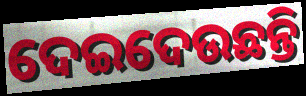
ଦେଇଦେଉଛନ୍ତି